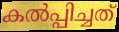
കൽപ്പിച്ചത്